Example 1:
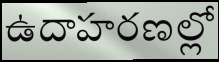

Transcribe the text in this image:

ఉదాహరణల్లో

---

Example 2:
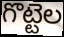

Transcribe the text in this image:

గొట్టెల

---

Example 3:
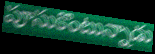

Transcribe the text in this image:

పూసుకొంటున్నాడు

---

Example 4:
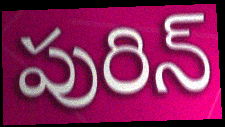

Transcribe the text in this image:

పురిన్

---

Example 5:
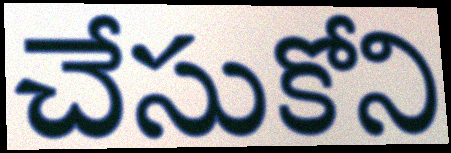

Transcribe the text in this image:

చేసుకోని